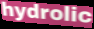
hydrolic